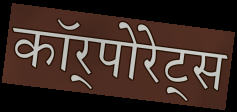
कॉर्पोरेट्‌स